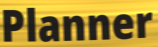
Planner